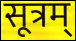
सूत्रम्